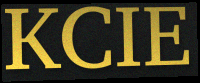
KCIE